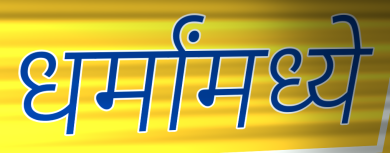
धर्मांमध्ये